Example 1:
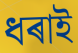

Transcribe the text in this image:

ধৰাই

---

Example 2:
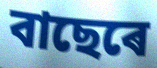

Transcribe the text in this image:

বাছেৰে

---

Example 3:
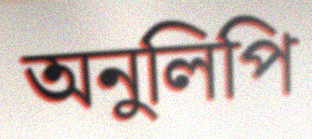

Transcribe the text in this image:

অনুলিপি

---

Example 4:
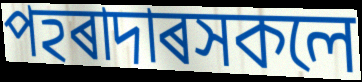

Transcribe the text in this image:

পহৰাদাৰসকলে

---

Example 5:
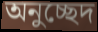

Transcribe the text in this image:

অনুচ্ছেদ